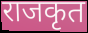
राजकृत